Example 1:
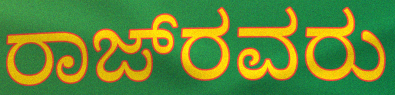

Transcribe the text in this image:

ರಾಜ್‌ರವರು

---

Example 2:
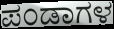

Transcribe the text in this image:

ಪಂಡಾಗಳ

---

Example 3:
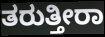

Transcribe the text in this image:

ತರುತ್ತೀರಾ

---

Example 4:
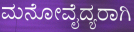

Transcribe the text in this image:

ಮನೋವೈದ್ಯರಾಗಿ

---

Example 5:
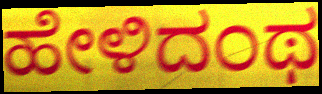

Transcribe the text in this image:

ಹೇಳಿದಂಥ